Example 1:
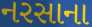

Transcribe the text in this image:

નરસાના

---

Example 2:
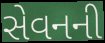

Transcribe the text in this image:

સેવનની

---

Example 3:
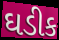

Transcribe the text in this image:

ઘડીક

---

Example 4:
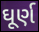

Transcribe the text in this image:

ઘૂર્ણ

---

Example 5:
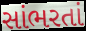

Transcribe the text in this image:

સાંભરતાં